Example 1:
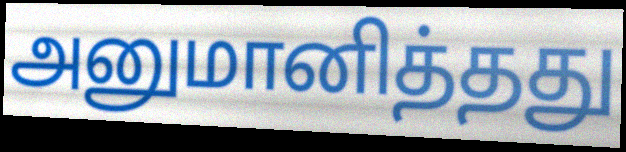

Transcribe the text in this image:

அனுமானித்தது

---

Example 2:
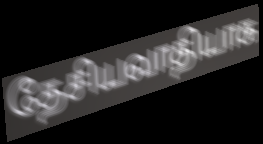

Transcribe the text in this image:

தேசியவாதியாக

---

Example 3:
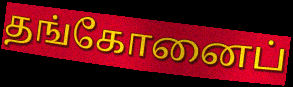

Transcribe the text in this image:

தங்கோனைப்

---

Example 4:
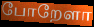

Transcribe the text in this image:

போறேளா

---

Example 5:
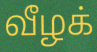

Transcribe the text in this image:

வீழக்